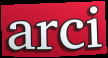
arci